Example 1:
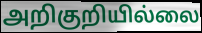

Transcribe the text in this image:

அறிகுறியில்லை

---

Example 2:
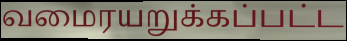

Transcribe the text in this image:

வமைரயறுக்கப்பட்ட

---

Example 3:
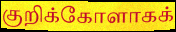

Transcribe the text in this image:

குறிக்கோளாகக்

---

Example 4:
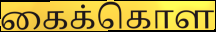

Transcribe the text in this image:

கைக்கொள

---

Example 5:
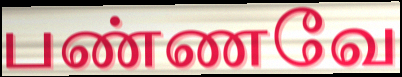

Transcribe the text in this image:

பண்ணவே